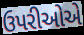
ઉપરીઓએ